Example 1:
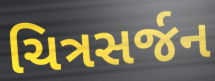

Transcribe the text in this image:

ચિત્રસર્જન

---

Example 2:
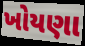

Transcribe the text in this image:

ખોયણા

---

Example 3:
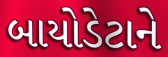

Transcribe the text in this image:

બાયોડેટાને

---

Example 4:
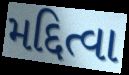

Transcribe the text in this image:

મદ્દિત્વા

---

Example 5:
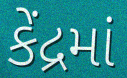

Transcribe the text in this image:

કેંદ્રમાં